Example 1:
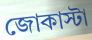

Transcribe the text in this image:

জোকাস্টা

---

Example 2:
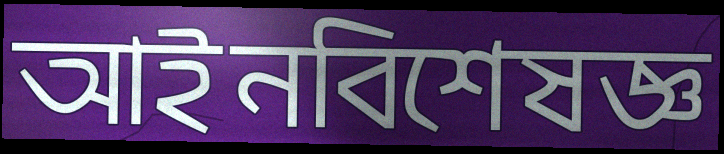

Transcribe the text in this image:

আইনবিশেষজ্ঞ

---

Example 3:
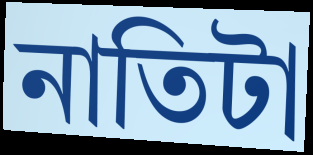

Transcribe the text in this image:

নাতিটা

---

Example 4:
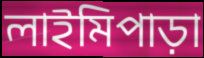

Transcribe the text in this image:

লাইমিপাড়া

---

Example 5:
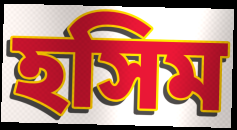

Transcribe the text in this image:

হসিম